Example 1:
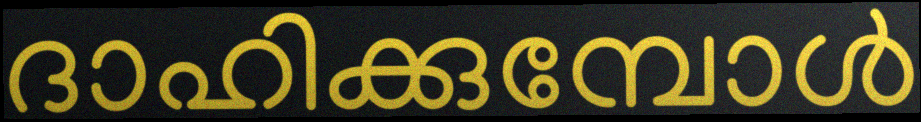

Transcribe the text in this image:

ദാഹിക്കുമ്പോൾ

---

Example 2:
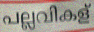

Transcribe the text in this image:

പല്ലവികള്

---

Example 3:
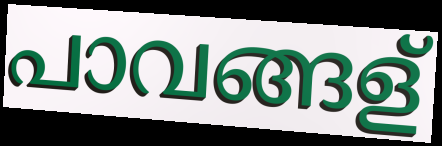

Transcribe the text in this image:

പാവങ്ങള്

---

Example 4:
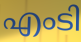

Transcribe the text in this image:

എംടി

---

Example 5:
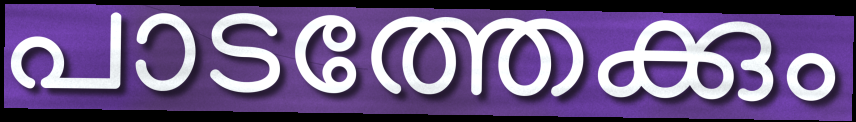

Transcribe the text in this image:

പാടത്തേക്കും